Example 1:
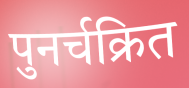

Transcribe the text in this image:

पुनर्चक्रित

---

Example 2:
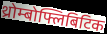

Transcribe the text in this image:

थ्रोम्बोफ्लिबिटिक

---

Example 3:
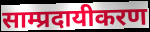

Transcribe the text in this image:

साम्प्रदायीकरण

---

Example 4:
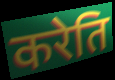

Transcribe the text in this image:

करेति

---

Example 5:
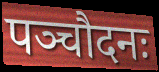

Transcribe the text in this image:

पञ्चौदनः